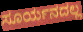
ಸೂರ್ಯನದಲ್ಲ